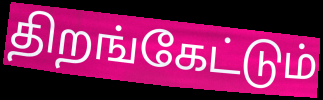
திறங்கேட்டும்